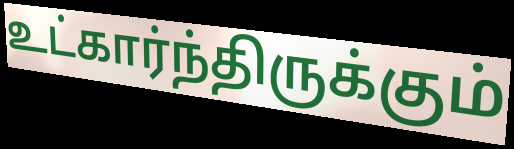
உட்கார்ந்திருக்கும்